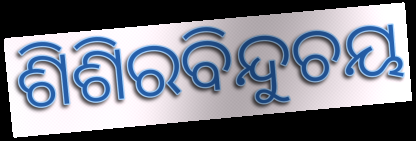
ଶିଶିରବିନ୍ଦୁଚୟ